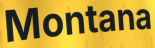
Montana